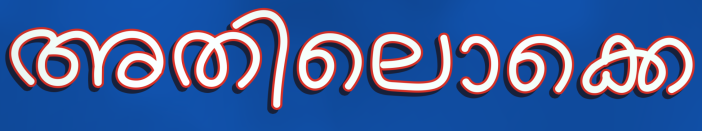
അതിലൊക്കെ